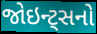
જોઇન્ટ્સનો